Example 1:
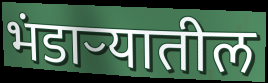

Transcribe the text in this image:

भंडाऱ्यातील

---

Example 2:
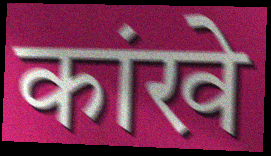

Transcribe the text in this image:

कांखे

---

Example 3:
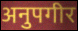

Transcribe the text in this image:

अनुपगीर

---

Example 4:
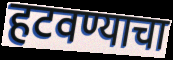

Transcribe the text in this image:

हटवण्याचा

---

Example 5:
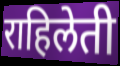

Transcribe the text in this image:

राहिलेती